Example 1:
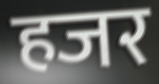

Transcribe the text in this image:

हजर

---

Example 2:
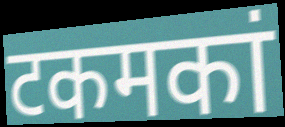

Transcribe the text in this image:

टकमकां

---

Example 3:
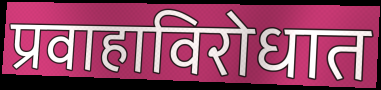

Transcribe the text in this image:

प्रवाहाविरोधात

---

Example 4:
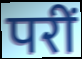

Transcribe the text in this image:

परीं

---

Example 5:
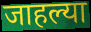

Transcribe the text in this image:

जाहल्या